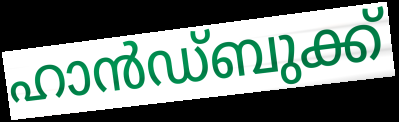
ഹാൻഡ്ബുക്ക്